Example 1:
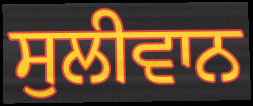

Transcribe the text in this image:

ਸੁਲੀਵਾਨ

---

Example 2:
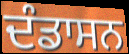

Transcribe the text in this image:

ਦੰਡਾਸਨ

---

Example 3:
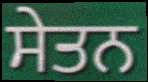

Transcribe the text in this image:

ਸੇਤਨ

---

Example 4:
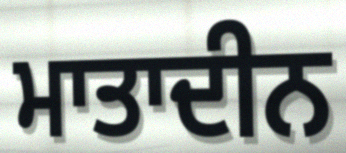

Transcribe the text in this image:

ਮਾਤਾਦੀਨ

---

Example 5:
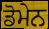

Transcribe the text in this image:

ਡੋਮੇਨ